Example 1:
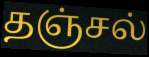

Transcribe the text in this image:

தஞ்சல்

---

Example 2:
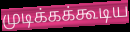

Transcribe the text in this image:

முடிக்கக்கூடிய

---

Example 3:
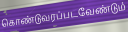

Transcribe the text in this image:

கொண்டுவரப்படவேண்டும்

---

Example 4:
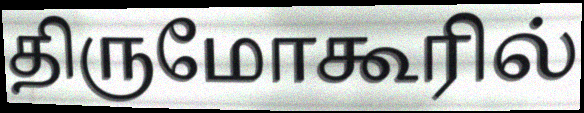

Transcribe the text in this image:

திருமோகூரில்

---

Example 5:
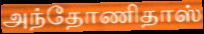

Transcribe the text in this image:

அந்தோணிதாஸ்